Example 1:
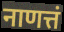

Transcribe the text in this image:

नाणत्तं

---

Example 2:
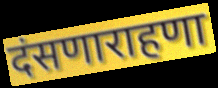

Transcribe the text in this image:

दंसणाराहणा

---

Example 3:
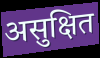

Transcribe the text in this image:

असुक्षित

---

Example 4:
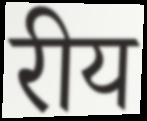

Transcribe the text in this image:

रीय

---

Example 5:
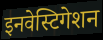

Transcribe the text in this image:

इनवेस्टिगेशन